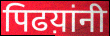
पिढय़ांनी